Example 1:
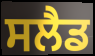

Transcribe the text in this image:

ਸਲੈਡ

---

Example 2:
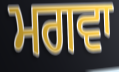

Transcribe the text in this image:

ਮਗਵਾ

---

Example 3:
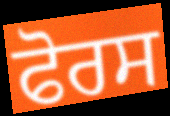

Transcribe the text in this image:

ਫੋਰਸ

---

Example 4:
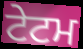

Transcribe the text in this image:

ਟੇਟਮ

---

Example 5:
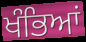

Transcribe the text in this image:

ਖੰਭਿਆਂ